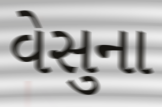
વેસુના